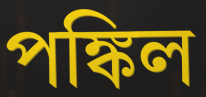
পঙ্কিল